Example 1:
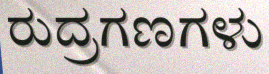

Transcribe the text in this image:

ರುದ್ರಗಣಗಳು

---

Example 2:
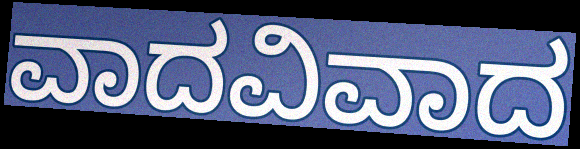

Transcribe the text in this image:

ವಾದವಿವಾದ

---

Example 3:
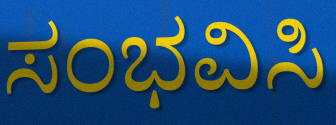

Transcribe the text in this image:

ಸಂಭವಿಸಿ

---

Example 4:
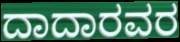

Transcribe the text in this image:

ದಾದಾರವರ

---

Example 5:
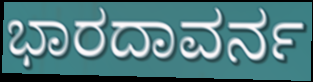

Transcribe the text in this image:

ಭಾರದಾವರ್ನ